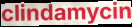
clindamycin